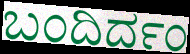
ಬಂದಿರ್ದಂ